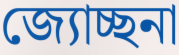
জ্যোচ্ছনা